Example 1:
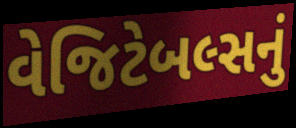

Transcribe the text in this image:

વેજિટેબલ્સનું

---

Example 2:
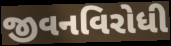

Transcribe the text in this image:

જીવનવિરોધી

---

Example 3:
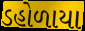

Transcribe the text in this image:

ડહોળાયા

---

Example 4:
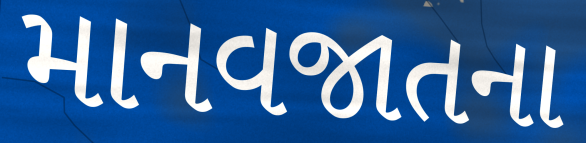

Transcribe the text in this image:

માનવજાતના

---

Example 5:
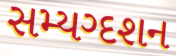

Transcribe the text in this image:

સમ્યગ્દશન